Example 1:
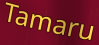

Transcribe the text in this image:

Tamaru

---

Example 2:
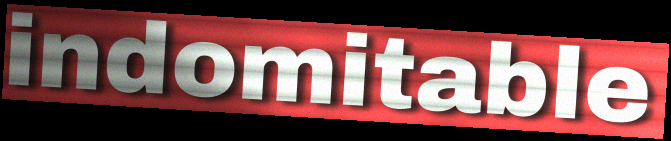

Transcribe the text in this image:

indomitable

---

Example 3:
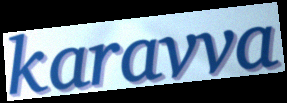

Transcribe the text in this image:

karavva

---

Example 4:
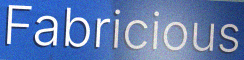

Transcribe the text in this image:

Fabricious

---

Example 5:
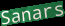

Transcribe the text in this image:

Sanars